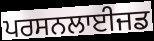
ਪਰਸਨਲਾਈਜਡ